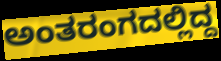
ಅಂತರಂಗದಲ್ಲಿದ್ದ